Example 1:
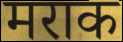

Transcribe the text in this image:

मराक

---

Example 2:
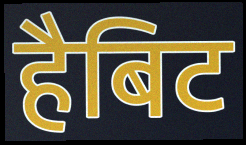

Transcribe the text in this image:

हैबिट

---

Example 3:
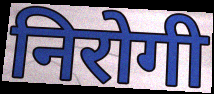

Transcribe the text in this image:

निरोगी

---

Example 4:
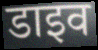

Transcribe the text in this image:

डाइव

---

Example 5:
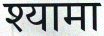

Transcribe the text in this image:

श्‍यामा